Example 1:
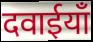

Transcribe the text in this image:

दवाईयाँ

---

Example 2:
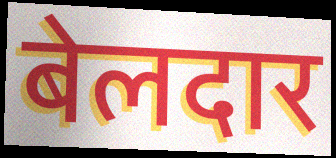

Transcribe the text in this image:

बेलदार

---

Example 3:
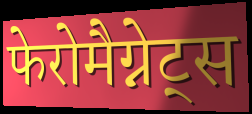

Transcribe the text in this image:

फेरोमैग्नेट्स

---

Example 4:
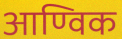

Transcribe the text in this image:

आण्विक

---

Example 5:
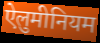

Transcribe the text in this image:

ऐलुमीनियम